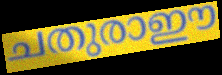
ചതുരാഈ